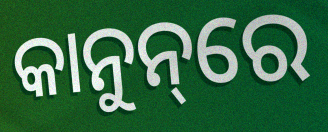
କାନୁନ୍‌ରେ